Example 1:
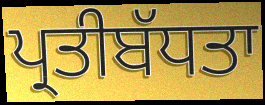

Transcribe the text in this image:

ਪ੍ਰਤੀਬੱਧਤਾ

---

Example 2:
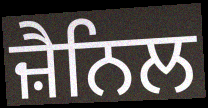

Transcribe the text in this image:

ਜ਼ੈਨਿਲ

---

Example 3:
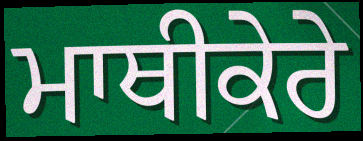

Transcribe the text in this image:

ਮਾਥੀਕੇਰੇ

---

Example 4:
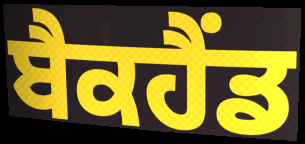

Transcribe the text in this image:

ਬੈਕਹੈਂਡ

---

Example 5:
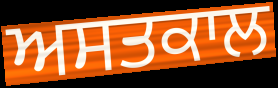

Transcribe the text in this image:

ਅਸਤਕਾਲ